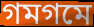
গমগমে